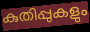
കുതിപ്പുകളും